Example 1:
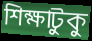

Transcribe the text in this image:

শিক্ষাটুকু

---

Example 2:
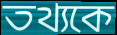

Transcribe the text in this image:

তথ্যকে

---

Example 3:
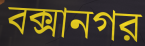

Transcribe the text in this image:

বক্সানগর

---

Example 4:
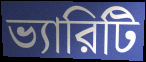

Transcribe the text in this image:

ভ্যারিটি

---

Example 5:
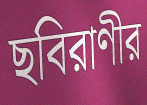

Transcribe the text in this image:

ছবিরাণীর